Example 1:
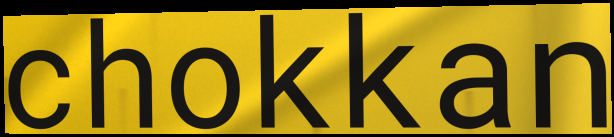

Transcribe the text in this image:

chokkan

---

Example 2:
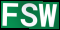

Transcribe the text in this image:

FSW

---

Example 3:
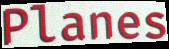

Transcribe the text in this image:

Planes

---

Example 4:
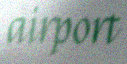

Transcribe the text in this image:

airport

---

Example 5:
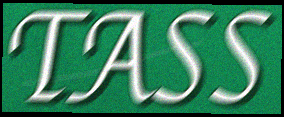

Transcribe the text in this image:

TASS